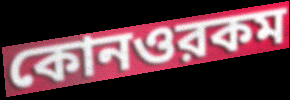
কোনওরকম